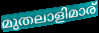
മുതലാളിമാര്